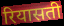
रियासती